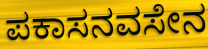
ಪಕಾಸನವಸೇನ